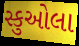
સ્કુઓલા